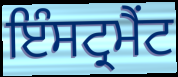
ਇੰਸਟ੍ਰਮੈਂਟ